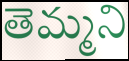
తెమ్మని